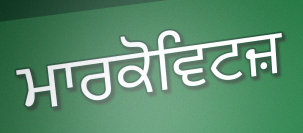
ਮਾਰਕੋਵਿਟਜ਼